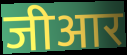
जीआर